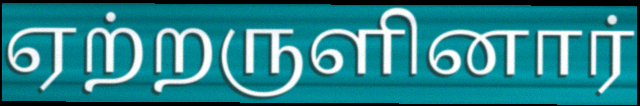
ஏற்றருளினார்